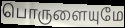
பொருளையுமே